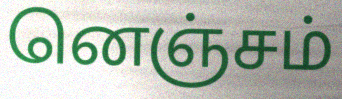
னெஞ்சம்